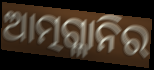
ଆତ୍ମଗ୍ଳାନିର